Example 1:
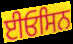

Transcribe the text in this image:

ਈਓਸਿਨ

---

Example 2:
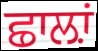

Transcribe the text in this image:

ਛਾਲ਼ਾਂ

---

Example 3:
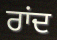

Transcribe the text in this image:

ਰਾਂਦ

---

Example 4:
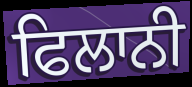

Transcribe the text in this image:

ਫਿਲਾਨੀ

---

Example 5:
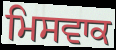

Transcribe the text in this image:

ਮਿਸਵਾਕ